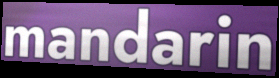
mandarin